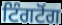
ਟਿੰਗਟੋਂਗ